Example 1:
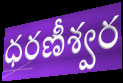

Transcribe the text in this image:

ధరణీశ్వర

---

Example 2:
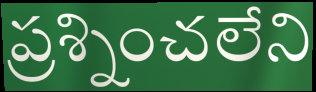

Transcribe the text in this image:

ప్రశ్నించలేని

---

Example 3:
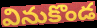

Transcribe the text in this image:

వినుకొండ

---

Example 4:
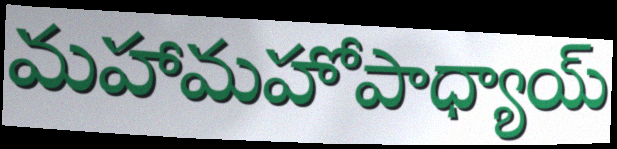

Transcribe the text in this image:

మహామహోపాధ్యాయ్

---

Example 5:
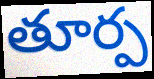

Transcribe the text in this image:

తూర్ప